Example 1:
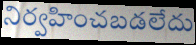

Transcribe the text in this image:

నిర్వహించబడలేదు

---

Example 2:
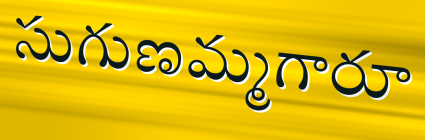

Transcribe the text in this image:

సుగుణమ్మగారూ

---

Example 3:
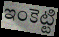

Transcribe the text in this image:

ఇంకెట్టి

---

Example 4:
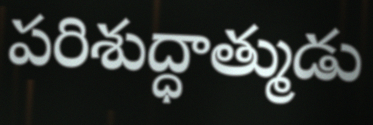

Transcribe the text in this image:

పరిశుద్ధాత్ముడు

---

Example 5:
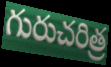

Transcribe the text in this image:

గురుచరిత్ర